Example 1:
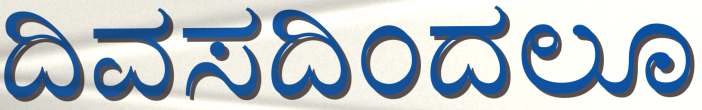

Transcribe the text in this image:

ದಿವಸದಿಂದಲೂ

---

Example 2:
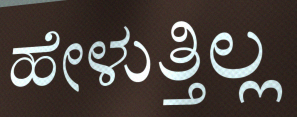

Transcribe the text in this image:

ಹೇಳುತ್ತಿಲ್ಲ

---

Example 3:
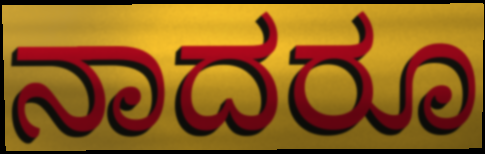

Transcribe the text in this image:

ನಾದರೂ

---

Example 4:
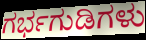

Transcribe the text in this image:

ಗರ್ಭಗುಡಿಗಳು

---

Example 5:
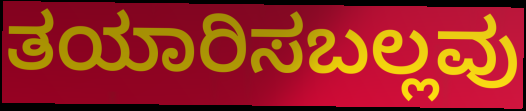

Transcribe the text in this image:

ತಯಾರಿಸಬಲ್ಲವು